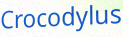
Crocodylus